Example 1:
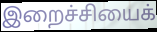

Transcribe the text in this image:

இறைச்சியைக்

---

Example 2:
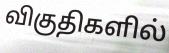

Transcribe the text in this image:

விகுதிகளில்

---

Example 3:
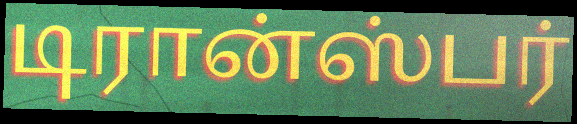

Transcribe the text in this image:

டிரான்ஸ்பர்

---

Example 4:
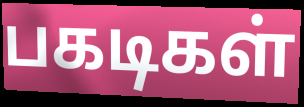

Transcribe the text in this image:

பகடிகள்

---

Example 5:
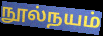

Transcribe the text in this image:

நூல்நயம்